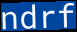
ndrf